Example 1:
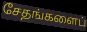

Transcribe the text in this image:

சேதங்களைப்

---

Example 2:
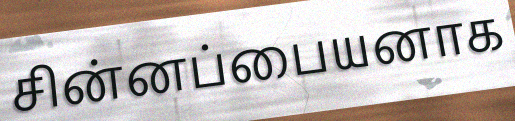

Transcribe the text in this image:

சின்னப்பையனாக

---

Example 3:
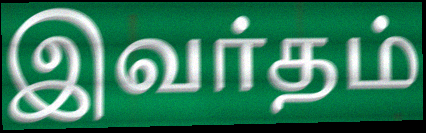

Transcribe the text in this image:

இவர்தம்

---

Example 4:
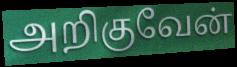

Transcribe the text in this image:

அறிகுவேன்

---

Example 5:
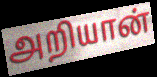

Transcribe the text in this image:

அறியான்